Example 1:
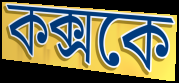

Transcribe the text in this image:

কক্সকে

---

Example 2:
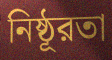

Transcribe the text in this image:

নিষ্ঠূরতা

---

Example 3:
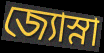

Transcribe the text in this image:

জ্যোস্না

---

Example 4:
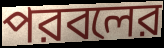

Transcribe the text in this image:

পরবলের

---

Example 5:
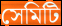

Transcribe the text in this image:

সেমিটি